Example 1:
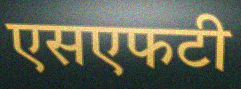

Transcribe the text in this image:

एसएफटी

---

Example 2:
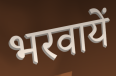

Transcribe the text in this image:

भरवायें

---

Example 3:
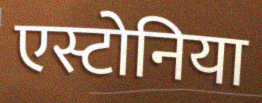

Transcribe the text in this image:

एस्टोनिया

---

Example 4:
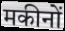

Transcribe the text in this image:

मकीनों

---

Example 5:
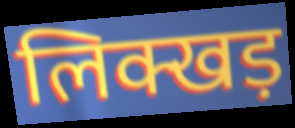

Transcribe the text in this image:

लिक्खड़